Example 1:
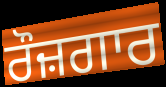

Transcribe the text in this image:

ਰੌਜ਼ਗਾਰ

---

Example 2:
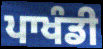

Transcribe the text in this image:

ਪਾਖੰਡੀ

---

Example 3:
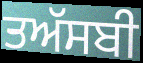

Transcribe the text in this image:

ਤਅੱਸਬੀ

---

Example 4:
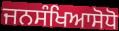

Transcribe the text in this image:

ਜਨਸੰਖਿਆਸੋਧੋ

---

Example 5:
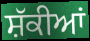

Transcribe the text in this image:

ਸ਼ੱਕੀਆਂ